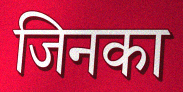
जिनका